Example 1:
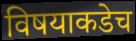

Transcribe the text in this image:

विषयाकडेच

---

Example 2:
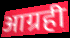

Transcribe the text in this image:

आग्रही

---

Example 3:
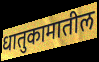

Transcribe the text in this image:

धातुकामातील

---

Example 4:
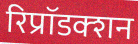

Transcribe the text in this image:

रिप्रॉडक्शन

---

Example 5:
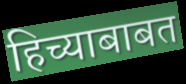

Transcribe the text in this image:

हिच्याबाबत